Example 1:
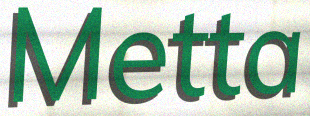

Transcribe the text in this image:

Metta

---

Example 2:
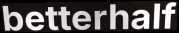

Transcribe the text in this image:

betterhalf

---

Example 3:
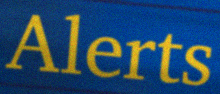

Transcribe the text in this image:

Alerts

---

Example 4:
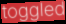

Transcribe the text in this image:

toggled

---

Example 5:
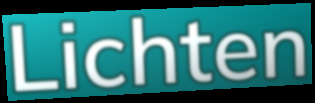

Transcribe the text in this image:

Lichten